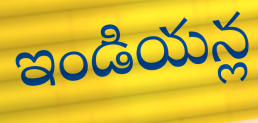
ఇండియన్ల